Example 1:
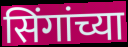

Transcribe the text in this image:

सिंगांच्या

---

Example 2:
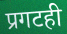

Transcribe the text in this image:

प्रगटही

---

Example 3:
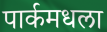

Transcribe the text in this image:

पार्कमधला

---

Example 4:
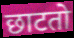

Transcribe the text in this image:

छाटतो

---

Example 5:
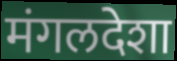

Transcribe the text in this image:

मंगलदेशा